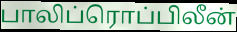
பாலிப்ரொப்பிலீன்